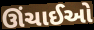
ઊંચાઈઓ